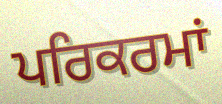
ਪਰਿਕਰਮਾਂ